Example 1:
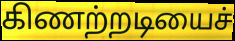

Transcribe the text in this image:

கிணற்றடியைச்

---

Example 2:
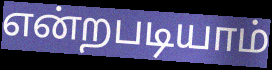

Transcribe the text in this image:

என்றபடியாம்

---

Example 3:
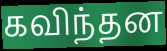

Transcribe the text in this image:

கவிந்தன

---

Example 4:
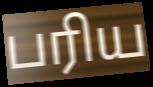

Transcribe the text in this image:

பரிய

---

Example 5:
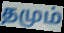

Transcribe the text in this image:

தமும்